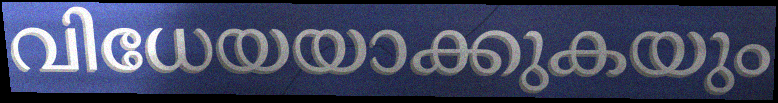
വിധേയയാക്കുകയും